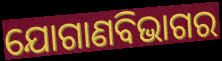
ଯୋଗାଣବିଭାଗର